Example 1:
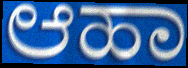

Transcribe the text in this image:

ಆಹಾ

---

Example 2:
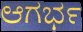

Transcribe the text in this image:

ಆಗರ್ಭ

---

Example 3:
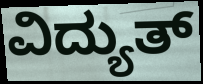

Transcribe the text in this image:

ವಿದ್ಯುತ್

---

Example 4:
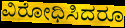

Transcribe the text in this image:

ವಿರೋಧಿಸಿದರೂ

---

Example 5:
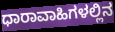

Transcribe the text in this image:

ಧಾರಾವಾಹಿಗಳಲ್ಲಿನ